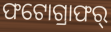
ଫଟୋଗ୍ରାଫର୍